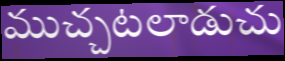
ముచ్చటలాడుచు